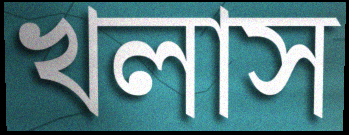
খলাস